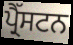
ਪ੍ਰੈੱਸਟਨ